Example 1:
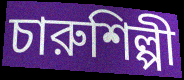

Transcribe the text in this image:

চারুশিল্পী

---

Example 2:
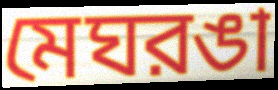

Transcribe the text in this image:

মেঘরঙা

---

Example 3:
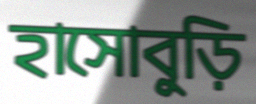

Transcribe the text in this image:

হাসোবুড়ি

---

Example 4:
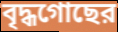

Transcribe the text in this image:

বৃদ্ধগোছের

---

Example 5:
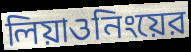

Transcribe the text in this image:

লিয়াওনিংয়ের